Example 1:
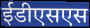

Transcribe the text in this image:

ईडीएसएस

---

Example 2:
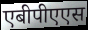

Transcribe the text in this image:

एबीपीएएस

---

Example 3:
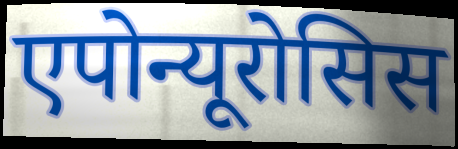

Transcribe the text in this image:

एपोन्यूरोसिस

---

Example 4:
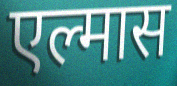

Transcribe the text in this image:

एल्मास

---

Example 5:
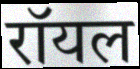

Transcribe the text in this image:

रॉयल